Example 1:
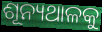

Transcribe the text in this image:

ଶୂନ୍ୟଥାଳକୁ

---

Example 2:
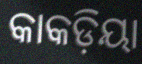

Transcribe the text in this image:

କାକଡ଼ିୟା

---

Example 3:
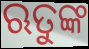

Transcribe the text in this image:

ଋତୁଙ୍କ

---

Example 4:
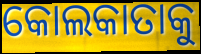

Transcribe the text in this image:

କୋଲକାତାକୁ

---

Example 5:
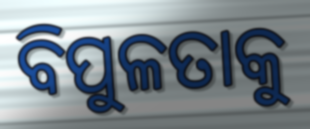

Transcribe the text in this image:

ବିପୁଳତାକୁ